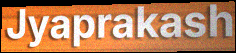
Jyaprakash